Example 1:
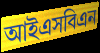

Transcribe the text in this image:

আইএসবিএন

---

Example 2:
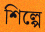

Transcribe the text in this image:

শিল্পে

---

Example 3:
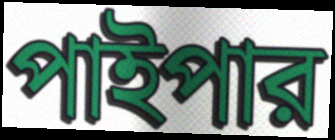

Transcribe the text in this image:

পাইপার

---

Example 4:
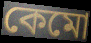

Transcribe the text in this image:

কেমো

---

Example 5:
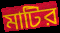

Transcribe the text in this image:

মাটির